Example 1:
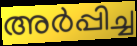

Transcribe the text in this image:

അർപ്പിച്ച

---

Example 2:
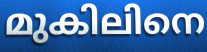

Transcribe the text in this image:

മുകിലിനെ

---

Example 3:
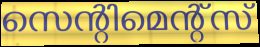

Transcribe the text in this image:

സെന്റിമെന്റ്സ്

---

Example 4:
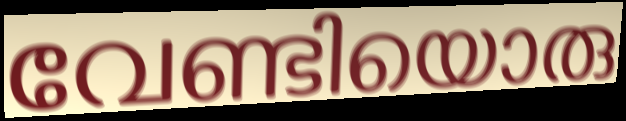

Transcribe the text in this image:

വേണ്ടിയൊരു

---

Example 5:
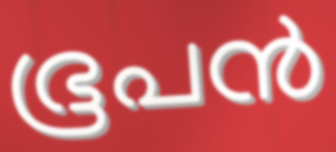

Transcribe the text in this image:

ഭൂപൻ